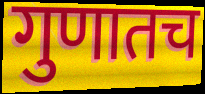
गुणातच